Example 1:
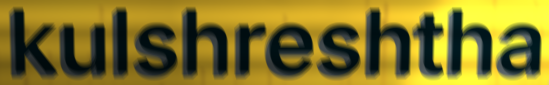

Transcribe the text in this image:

kulshreshtha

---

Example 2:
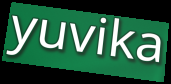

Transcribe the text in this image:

yuvika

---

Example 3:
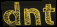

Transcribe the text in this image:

dnt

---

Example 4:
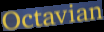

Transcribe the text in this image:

Octavian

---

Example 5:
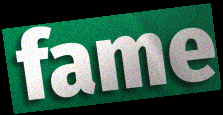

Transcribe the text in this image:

fame